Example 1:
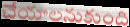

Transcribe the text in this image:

చేయాలనుకుంది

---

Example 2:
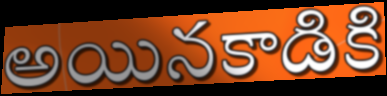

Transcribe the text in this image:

అయినకాడికి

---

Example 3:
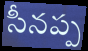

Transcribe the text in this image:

సీనప్ప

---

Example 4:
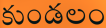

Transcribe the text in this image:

కుండలం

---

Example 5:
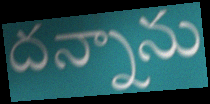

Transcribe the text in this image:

దన్నాను